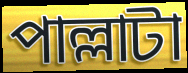
পাল্লাটা